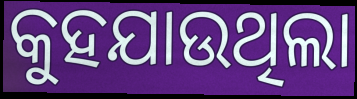
କୁହଯାଉଥିଲା